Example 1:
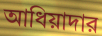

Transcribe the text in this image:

আধিয়াদার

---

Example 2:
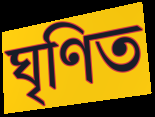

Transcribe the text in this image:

ঘৃণিত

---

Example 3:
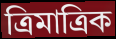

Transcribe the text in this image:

ত্রিমাত্রিক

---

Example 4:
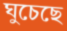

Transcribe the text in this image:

ঘুচেছে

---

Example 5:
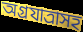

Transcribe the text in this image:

অগ্রযাত্রাসহ